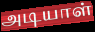
அடியாள்